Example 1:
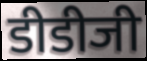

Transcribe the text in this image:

डीडीजी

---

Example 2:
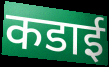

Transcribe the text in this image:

कडाई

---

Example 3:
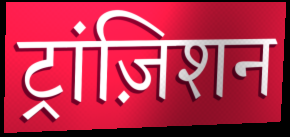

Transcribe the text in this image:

ट्रांज़िशन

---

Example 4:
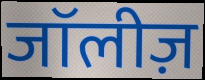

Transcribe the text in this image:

जॉलीज़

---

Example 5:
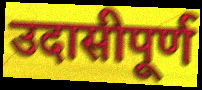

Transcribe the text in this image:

उदासीपूर्ण